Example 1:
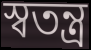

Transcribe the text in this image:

স্বতন্ত্র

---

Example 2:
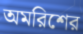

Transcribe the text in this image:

অমরিশের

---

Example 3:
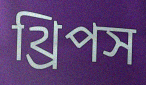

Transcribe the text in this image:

থ্রিপস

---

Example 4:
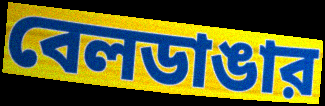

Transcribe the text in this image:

বেলডাঙার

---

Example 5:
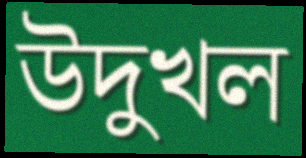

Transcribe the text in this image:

উদুখল